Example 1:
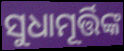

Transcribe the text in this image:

ସୁଧାମୂର୍ତ୍ତିଙ୍କ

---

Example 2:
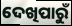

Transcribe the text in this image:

ଦେଖିପାରୁଁ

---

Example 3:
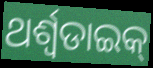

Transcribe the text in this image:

ଥର୍ଶ୍ଵଡାଇକ୍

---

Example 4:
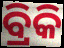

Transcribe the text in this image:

ବ୍ରିକି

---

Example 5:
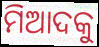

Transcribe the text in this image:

ମିଆଦକୁ